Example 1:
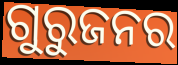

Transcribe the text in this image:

ଗୁରୁଜନର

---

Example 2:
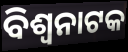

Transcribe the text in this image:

ବିଶ୍ୱନାଟକ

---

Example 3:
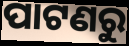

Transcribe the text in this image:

ପାଟଣରୁ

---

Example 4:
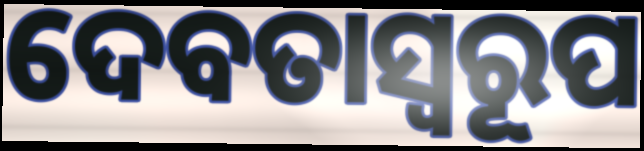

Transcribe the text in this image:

ଦେବତାସ୍ୱରୂପ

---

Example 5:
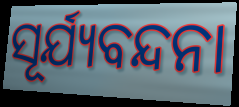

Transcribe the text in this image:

ସୂର୍ଯ୍ୟବନ୍ଦନା